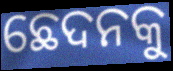
ଛେଦନକୁ